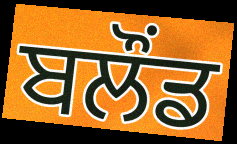
ਬਲੌਂਡ